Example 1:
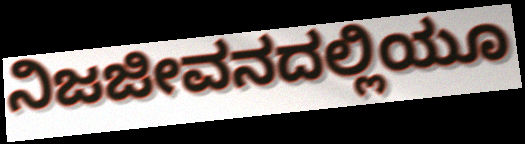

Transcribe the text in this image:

ನಿಜಜೀವನದಲ್ಲಿಯೂ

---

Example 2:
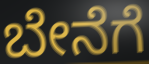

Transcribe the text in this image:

ಬೇನೆಗೆ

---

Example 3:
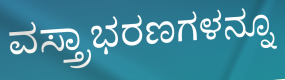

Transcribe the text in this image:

ವಸ್ತ್ರಾಭರಣಗಳನ್ನೂ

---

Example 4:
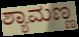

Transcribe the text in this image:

ಶ್ಯಾಮಣ್ಣ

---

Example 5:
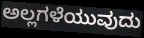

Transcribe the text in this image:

ಅಲ್ಲಗಳೆಯುವುದು